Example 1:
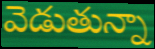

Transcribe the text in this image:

వెడుతున్నా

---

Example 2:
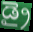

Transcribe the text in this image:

డ్రై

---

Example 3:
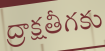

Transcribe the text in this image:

ద్రాక్షతీగకు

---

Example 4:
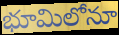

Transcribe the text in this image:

భూమిలోనూ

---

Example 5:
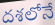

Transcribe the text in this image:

దశలోనే